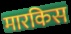
मारकिस